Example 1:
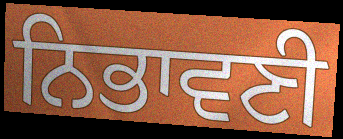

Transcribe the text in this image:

ਨਿਭਾਵਣੀ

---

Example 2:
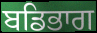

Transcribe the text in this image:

ਬਡਿਭਾਗ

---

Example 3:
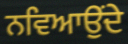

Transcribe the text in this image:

ਨਵਿਆਉਂਦੇ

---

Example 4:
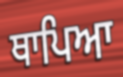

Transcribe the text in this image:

ਥਾਪਿਆ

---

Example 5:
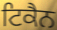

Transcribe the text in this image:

ਟਿਕੈਨ